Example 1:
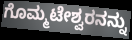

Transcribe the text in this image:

ಗೊಮ್ಮಟೇಶ್ವರನನ್ನು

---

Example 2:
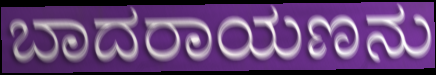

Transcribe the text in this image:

ಬಾದರಾಯಣನು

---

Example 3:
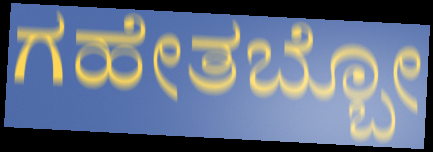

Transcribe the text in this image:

ಗಹೇತಬ್ಬೋ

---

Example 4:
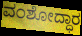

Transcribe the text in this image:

ವಂಶೋದ್ಧಾರ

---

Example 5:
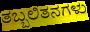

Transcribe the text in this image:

ತಬ್ಬಲಿತನಗಳು